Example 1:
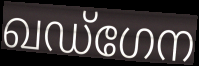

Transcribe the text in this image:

ഖഡ്ഗേന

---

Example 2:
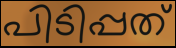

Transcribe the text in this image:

പിടിപ്പത്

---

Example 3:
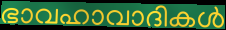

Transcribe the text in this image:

ഭാവഹാവാദികൾ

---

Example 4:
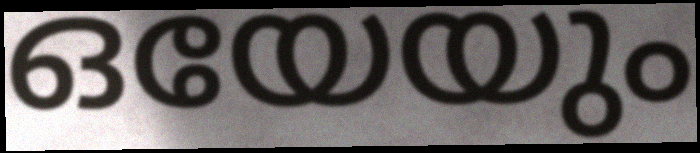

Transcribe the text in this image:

ഒയേയും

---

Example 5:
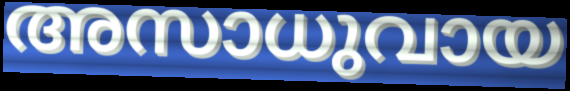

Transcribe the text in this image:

അസാധുവായ